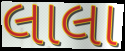
લાલા